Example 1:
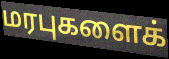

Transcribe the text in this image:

மரபுகளைக்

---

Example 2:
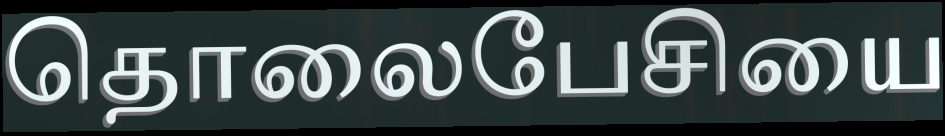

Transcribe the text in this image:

தொலைபேசியை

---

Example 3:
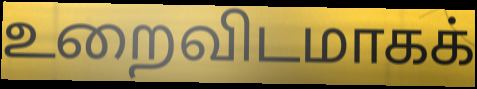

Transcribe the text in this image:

உறைவிடமாகக்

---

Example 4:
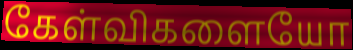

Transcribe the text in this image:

கேள்விகளையோ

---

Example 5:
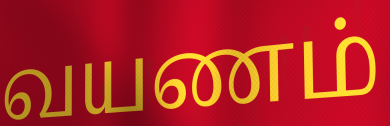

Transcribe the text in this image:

வயணம்